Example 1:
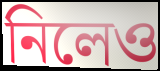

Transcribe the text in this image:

নিলেও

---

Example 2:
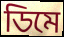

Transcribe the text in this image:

ডিমে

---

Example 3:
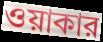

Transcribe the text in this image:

ওয়াকার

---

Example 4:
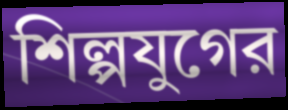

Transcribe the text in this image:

শিল্পযুগের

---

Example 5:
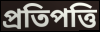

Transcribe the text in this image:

প্রতিপত্তি